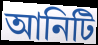
আনিটি